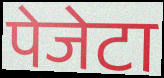
पेजेटा